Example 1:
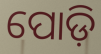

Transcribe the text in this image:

ପୋଡ଼ି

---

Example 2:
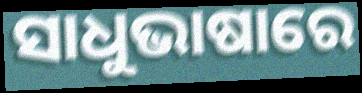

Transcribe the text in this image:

ସାଧୁଭାଷାରେ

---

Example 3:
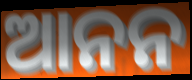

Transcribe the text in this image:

ଆନନ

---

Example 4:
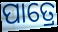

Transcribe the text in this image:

ପାତ୍ରେ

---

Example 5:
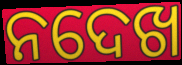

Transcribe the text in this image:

ନଦେଖ